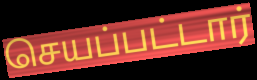
செயப்பட்டார்